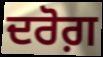
ਦਰੋਗ਼